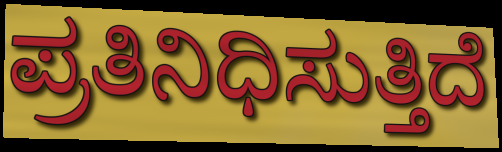
ಪ್ರತಿನಿಧಿಸುತ್ತಿದೆ